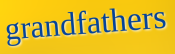
grandfathers